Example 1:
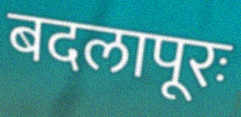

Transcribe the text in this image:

बदलापूरः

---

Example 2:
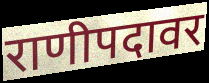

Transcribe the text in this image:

राणीपदावर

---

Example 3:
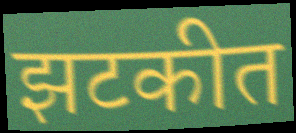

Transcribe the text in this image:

झटकीत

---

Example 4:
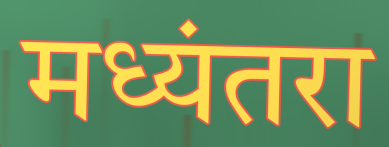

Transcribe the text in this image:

मध्यंतरा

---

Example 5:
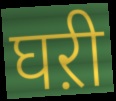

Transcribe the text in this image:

घऱी